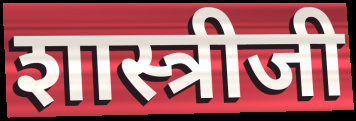
शास्त्रीजी